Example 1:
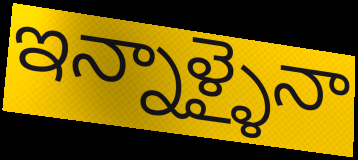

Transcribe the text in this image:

ఇన్నాళ్ళైనా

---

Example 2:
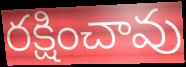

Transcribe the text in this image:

రక్షించావు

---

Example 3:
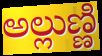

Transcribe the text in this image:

అల్లుణ్ణి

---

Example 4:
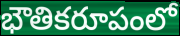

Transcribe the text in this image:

భౌతికరూపంలో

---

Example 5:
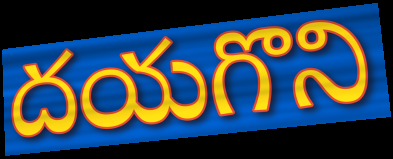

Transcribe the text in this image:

దయగొని